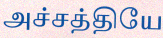
அச்சத்தியே